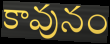
కావునం